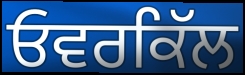
ਓਵਰਕਿੱਲ